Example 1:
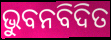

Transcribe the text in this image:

ଭୁବନବିଦିତ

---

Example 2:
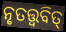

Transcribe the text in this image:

ନୃତତ୍ତ୍ୱବିତ୍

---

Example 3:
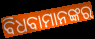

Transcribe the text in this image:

ବିଧବାମାନଙ୍କର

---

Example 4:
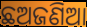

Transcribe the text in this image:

ଛଅଜଣିଆ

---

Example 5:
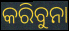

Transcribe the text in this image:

କରିବୁନା